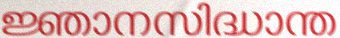
ജ്ഞാനസിദ്ധാന്ത